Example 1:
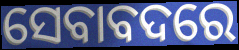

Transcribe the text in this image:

ସେବାବଦରେ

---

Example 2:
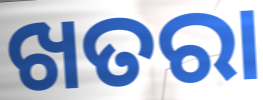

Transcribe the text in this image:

ଖତରା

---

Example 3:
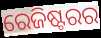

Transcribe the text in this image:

ରେଜିଷ୍ଟରର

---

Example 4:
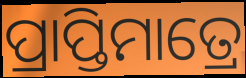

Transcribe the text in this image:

ପ୍ରାପ୍ତିମାତ୍ରେ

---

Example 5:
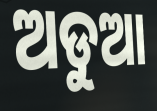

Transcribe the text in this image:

ଅଡୁଆ